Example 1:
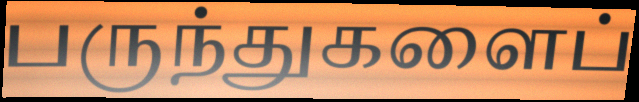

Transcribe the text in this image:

பருந்துகளைப்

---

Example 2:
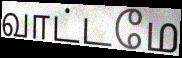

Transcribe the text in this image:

வாட்டமே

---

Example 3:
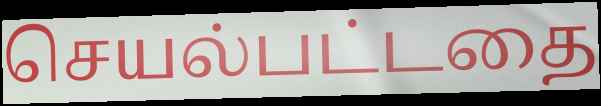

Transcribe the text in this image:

செயல்பட்டதை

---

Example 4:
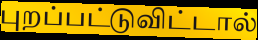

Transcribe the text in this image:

புறப்பட்டுவிட்டால்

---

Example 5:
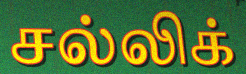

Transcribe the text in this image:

சல்லிக்